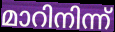
മാറിനിന്ന്